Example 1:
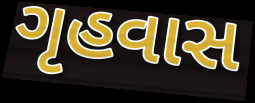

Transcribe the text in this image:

ગૃહવાસ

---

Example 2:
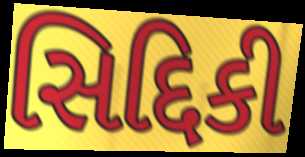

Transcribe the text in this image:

સિદ્દિકી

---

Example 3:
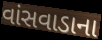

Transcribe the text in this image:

વાંસવાડાના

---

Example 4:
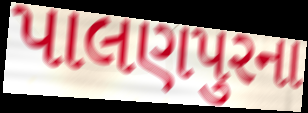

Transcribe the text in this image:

પાલણપુરના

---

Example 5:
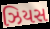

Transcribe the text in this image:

ઝિયસ